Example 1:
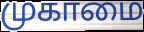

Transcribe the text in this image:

முகாமை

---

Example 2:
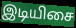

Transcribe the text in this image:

இடியிசை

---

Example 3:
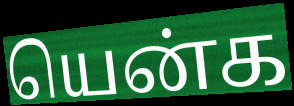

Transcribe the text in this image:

யென்க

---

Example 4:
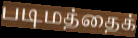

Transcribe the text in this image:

படிமத்தைக்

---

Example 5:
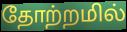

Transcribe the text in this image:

தோற்றமில்